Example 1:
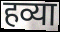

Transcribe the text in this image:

हव्या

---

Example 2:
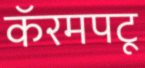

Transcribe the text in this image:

कॅरमपटू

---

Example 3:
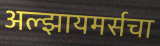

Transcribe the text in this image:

अल्झायमर्सचा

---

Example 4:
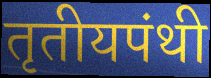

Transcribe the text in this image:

तृतीयपंथी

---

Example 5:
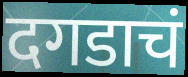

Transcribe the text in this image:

दगडाचं